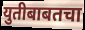
युतीबाबतचा